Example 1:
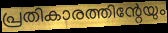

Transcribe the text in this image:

പ്രതികാരത്തിന്റേയും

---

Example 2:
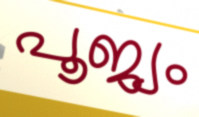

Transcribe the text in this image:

പൂജ്യം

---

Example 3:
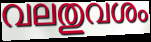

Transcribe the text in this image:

വലതുവശം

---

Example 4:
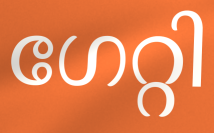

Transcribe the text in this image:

ഗേറ്റി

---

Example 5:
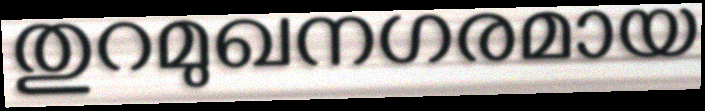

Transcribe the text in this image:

തുറമുഖനഗരമായ